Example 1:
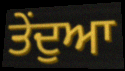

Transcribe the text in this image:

ਤੇਂਦੁਆ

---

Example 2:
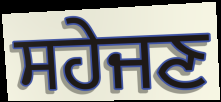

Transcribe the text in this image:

ਸਹੇਜਣ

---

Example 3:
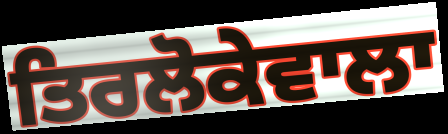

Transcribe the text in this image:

ਤਿਰਲੋਕੇਵਾਲਾ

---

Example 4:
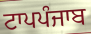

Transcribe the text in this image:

ਟਾਪਪੰਜਾਬ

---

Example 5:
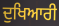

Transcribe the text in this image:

ਦੁਖਿਆਰੀ